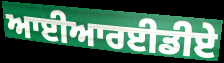
ਆਈਆਰਈਡੀਏ